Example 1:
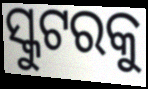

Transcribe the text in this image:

ସ୍କୁଟରକୁ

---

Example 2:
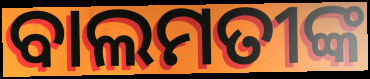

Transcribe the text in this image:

ବାଲମତୀଙ୍କ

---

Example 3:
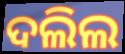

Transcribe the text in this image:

ଦଲିଲ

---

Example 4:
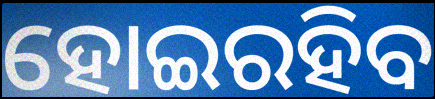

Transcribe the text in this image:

ହୋଇରହିବ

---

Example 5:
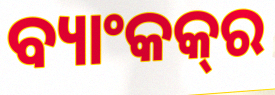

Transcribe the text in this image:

ବ୍ୟାଂକକ୍‍ର